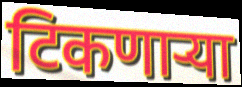
टिकणाऱ्या